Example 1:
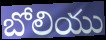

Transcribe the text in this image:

బోలియు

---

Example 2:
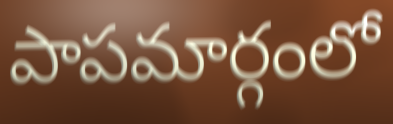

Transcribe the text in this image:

పాపమార్గంలో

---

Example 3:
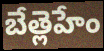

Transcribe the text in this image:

బేత్లెహేం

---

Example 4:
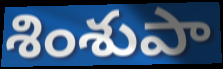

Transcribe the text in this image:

శింశుపా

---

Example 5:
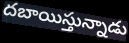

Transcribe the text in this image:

దబాయిస్తున్నాడు